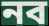
নব